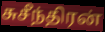
சுசீந்திரன்